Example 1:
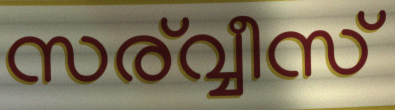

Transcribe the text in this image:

സര്വ്വീസ്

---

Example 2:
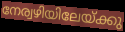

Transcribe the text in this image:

നേര്വഴിയിലേയ്ക്കു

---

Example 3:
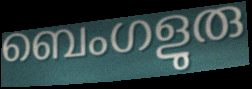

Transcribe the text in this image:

ബെംഗളുരു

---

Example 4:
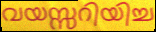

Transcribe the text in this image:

വയസ്സറിയിച്ച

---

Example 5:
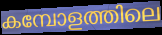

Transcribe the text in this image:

കമ്പോളത്തിലെ